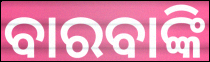
ବାରବାଙ୍କି